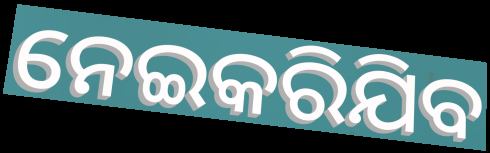
ନେଇକରିଯିବ